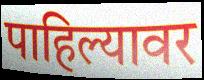
पाहिल्‍यावर